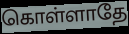
கொள்ளாதே